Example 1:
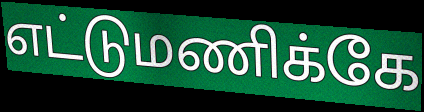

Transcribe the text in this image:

எட்டுமணிக்கே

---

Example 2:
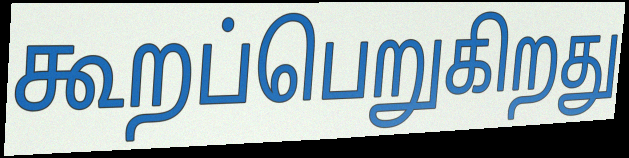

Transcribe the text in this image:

கூறப்பெறுகிறது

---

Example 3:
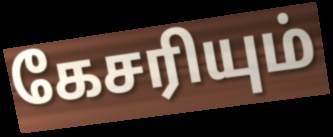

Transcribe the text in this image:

கேசரியும்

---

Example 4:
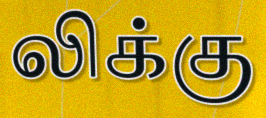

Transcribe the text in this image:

லிக்கு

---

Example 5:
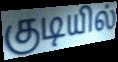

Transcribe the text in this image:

குடியில்